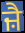
ਜ਼ੈ